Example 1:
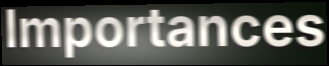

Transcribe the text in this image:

Importances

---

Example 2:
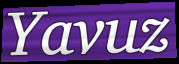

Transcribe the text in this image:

Yavuz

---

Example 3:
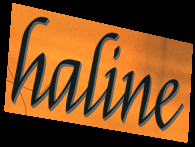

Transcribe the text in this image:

haline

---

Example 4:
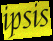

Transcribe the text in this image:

ipsis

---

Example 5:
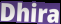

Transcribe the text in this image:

Dhira